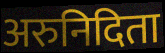
अरुनिदिता